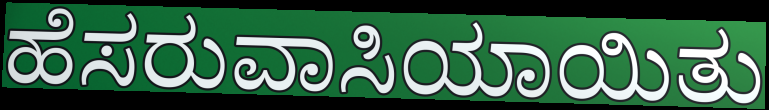
ಹೆಸರುವಾಸಿಯಾಯಿತು